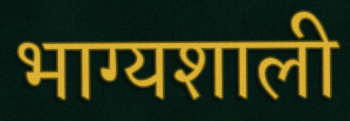
भाग्यशाली